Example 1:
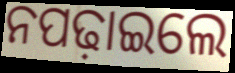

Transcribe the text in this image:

ନପଢ଼ାଇଲେ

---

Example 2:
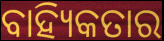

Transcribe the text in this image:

ବାହ୍ୟିକତାର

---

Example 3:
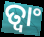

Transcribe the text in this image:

ତ୍ଵାଂ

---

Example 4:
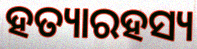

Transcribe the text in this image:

ହତ୍ୟାରହସ୍ୟ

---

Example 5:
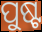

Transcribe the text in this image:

ପୁଷ୍ଟ